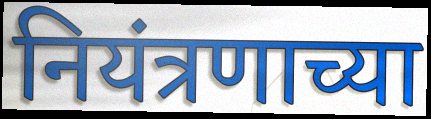
नियंत्रणाच्या